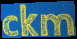
ckm